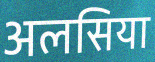
अलसिया